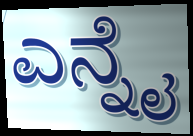
ಎನ್ನೈ